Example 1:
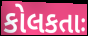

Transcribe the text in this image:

કોલકતાઃ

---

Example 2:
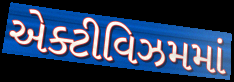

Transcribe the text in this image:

એક્ટીવિઝમમાં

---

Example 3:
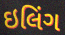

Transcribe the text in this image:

ઇલિંગ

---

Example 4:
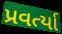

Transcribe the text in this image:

પ્રવર્ત્યા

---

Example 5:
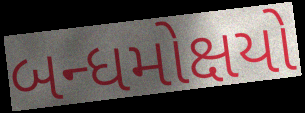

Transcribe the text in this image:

બન્ધમોક્ષયો